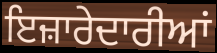
ਇਜ਼ਾਰੇਦਾਰੀਆਂ